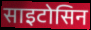
साइटोसिन